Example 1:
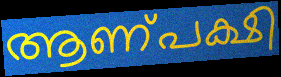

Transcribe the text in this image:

ആണ്പക്ഷി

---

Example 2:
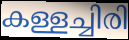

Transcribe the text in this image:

കള്ളച്ചിരി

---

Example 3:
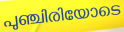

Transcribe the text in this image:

പുഞ്ചിരിയോടെ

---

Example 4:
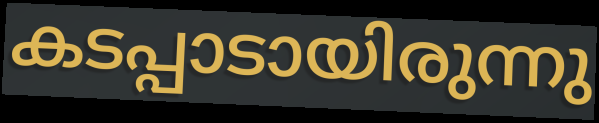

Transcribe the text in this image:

കടപ്പാടായിരുന്നു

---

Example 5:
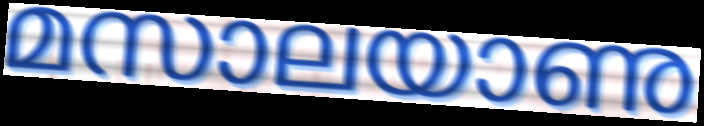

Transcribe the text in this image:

മസാലയാണു